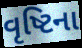
વૃષ્ટિના